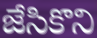
జేసికొని